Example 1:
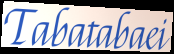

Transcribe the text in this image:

Tabatabaei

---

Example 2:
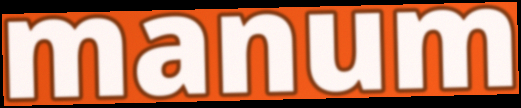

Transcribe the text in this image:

manum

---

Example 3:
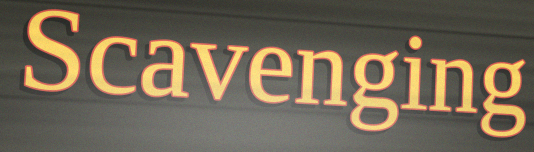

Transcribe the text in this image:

Scavenging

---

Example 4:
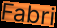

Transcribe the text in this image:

Fabri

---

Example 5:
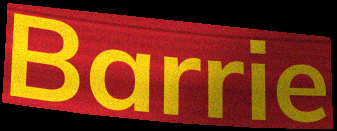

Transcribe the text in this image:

Barrie